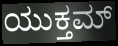
ಯುಕ್ತಮ್